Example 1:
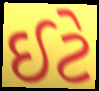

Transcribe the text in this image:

ઈટે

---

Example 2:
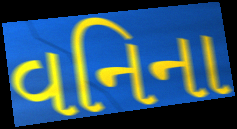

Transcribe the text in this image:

વનિના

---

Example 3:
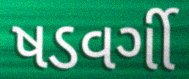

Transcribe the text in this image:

ષડવર્ગી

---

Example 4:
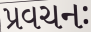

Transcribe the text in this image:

પ્રવચનઃ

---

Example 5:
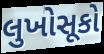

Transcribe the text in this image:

લુખોસૂકો